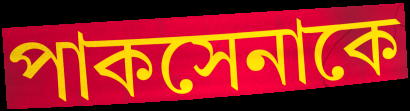
পাকসেনাকে